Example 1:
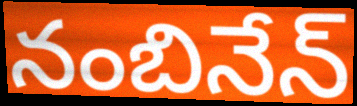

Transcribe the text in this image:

నంబినేన్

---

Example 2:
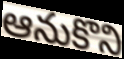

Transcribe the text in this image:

ఆనుకొని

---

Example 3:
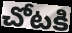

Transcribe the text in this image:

చోటకి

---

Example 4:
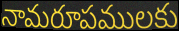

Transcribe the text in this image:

నామరూపములకు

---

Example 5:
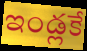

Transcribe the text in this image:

ఇండ్లకే